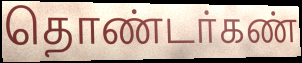
தொண்டர்கண்